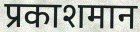
प्रकाशमान